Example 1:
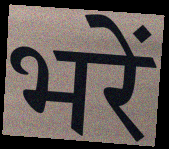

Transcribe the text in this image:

भरें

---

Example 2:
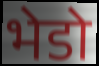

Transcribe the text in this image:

भेडो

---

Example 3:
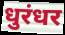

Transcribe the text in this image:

धुरंधर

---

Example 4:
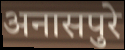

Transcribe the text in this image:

अनासपुरे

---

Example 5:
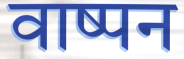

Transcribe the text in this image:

वाष्पन